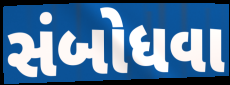
સંબોધવા